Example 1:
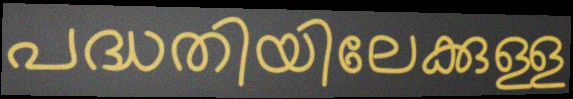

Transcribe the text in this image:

പദ്ധതിയിലേക്കുള്ള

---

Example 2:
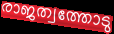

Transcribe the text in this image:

രാജത്വത്തോടു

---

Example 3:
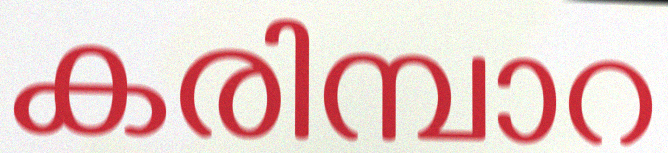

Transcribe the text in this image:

കരിമ്പാറ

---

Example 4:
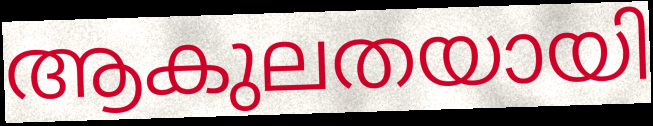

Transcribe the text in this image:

ആകുലതയായി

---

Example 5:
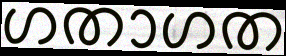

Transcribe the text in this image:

ഗതാഗത